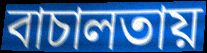
বাচালতায়